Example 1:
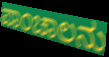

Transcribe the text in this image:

ಪಾಂಚಾಲನು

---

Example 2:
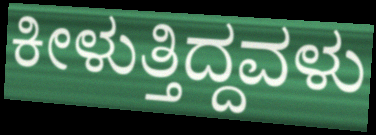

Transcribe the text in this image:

ಕೀಳುತ್ತಿದ್ದವಳು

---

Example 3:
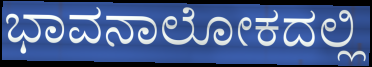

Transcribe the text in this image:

ಭಾವನಾಲೋಕದಲ್ಲಿ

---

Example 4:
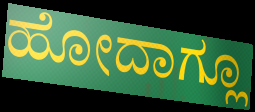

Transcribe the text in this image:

ಹೋದಾಗ್ಲೂ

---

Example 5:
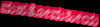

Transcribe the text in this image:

ಮಹತೋಮಹೀಯ